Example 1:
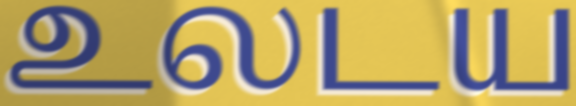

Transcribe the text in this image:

உலடய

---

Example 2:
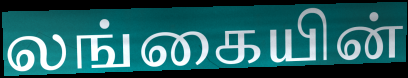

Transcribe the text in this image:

லங்கையின்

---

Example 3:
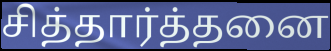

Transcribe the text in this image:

சித்தார்த்தனை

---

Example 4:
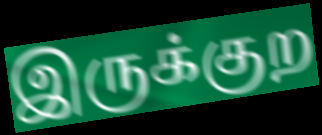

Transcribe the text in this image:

இருக்குற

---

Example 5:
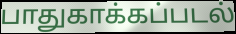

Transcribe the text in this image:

பாதுகாக்கப்படல்